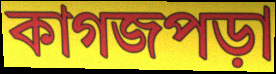
কাগজপড়া